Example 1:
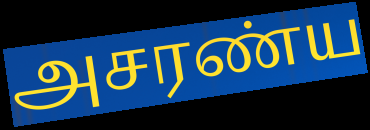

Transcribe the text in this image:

அசரண்ய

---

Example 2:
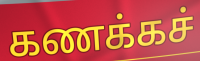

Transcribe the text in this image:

கணக்கச்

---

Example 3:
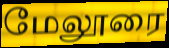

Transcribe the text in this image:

மேலூரை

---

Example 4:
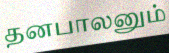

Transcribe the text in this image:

தனபாலனும்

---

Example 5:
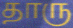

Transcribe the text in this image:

தாரு